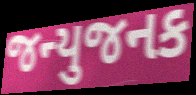
જન્યુજનક